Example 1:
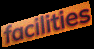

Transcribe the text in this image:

facilities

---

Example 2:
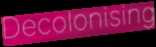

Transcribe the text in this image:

Decolonising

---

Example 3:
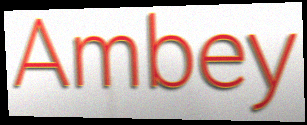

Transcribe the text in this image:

Ambey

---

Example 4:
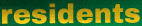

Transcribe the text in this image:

residents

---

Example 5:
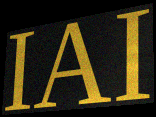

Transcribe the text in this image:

IAI